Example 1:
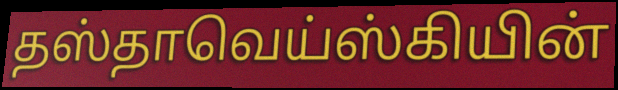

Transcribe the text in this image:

தஸ்தாவெய்ஸ்கியின்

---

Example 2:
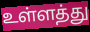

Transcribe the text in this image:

உள்ளத்து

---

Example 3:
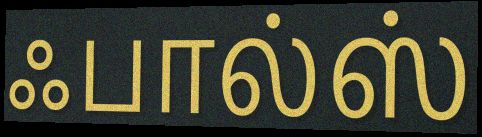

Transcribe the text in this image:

ஃபால்ஸ்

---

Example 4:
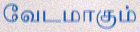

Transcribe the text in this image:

வேடமாகும்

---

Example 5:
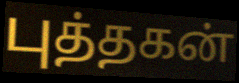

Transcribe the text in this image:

புத்தகன்